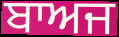
ਬਾਅਜ